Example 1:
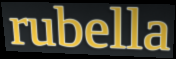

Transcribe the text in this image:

rubella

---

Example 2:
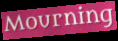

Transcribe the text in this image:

Mourning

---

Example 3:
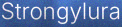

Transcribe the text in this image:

Strongylura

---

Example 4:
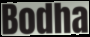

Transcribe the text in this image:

Bodha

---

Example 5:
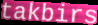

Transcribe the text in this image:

takbirs